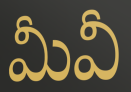
మీవీ